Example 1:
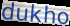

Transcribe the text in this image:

dukho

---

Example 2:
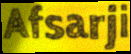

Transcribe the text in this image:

Afsarji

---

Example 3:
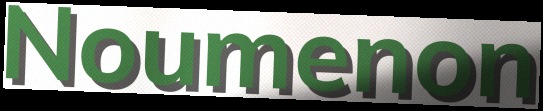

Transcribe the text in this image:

Noumenon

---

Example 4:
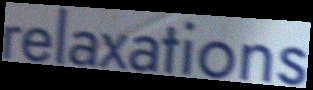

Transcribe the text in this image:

relaxations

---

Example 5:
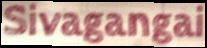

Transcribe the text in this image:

Sivagangai